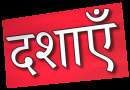
दशाएँ